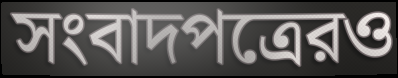
সংবাদপত্রেরও